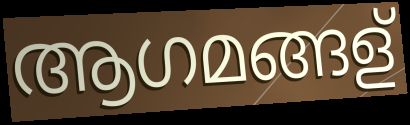
ആഗമങ്ങള്